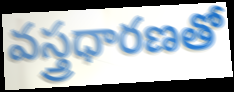
వస్త్రధారణతో